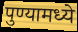
पुण्यामध्ये